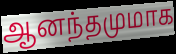
ஆனந்தமுமாக